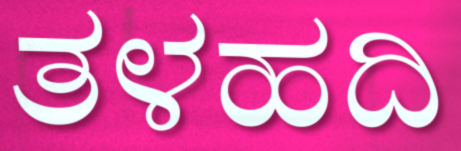
ತಳಹದಿ